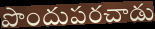
పొందుపరచాడు